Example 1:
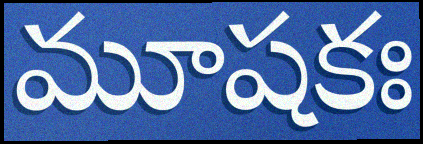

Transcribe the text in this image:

మూషకః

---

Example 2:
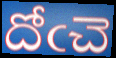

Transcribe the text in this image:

దోఁచె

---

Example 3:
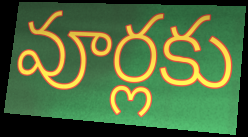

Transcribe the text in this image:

వూర్లకు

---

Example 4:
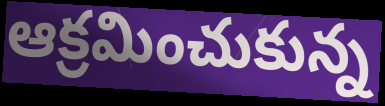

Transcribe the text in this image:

ఆక్రమించుకున్న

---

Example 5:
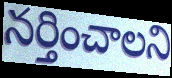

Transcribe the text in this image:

నర్తించాలని